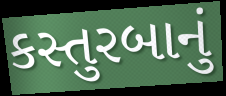
કસ્તુરબાનું